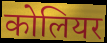
कोलियर